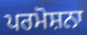
ਪਰਮੋਸ਼ਨਾ